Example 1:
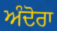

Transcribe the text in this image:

ਅੰਦੋਰਾ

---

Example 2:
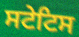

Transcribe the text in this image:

ਸਟੇਟਿਸ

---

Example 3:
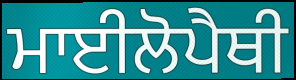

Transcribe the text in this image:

ਮਾਈਲੋਪੈਥੀ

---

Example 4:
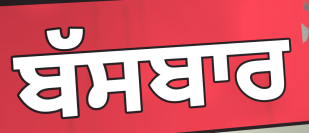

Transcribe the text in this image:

ਬੱਸਬਾਰ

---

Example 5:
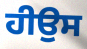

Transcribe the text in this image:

ਹੀਉਸ